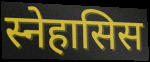
स्नेहासिस